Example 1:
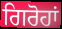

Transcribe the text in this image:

ਗਿਰੋਹਾਂ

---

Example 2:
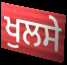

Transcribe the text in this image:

ਖੁਲਸੇ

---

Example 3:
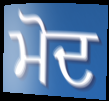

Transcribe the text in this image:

ਮੋਦ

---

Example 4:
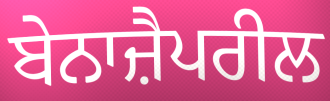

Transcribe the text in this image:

ਬੇਨਾਜ਼ੈਪਰੀਲ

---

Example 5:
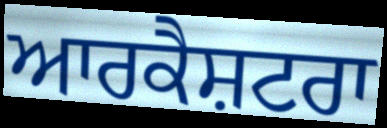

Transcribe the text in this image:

ਆਰਕੈਸ਼ਟਰਾ